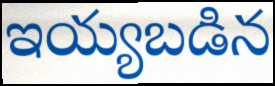
ఇయ్యబడిన